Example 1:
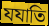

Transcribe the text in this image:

যযাতি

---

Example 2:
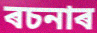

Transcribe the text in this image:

ৰচনাৰ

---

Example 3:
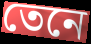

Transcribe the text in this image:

তেনে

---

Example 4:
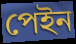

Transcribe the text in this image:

পেইন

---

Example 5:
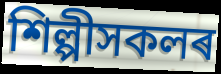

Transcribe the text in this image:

শিল্পীসকলৰ